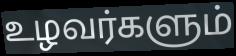
உழவர்களும்